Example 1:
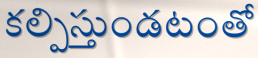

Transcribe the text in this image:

కల్పిస్తుండటంతో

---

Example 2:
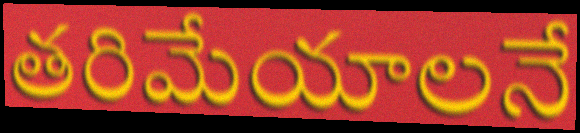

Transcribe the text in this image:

తరిమేయాలనే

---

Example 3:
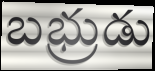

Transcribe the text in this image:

బభ్రుడు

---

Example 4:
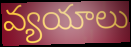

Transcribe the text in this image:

వ్యయాలు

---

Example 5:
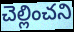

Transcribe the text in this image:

చెల్లించని